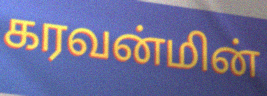
கரவன்மின்